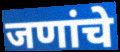
जणांचे